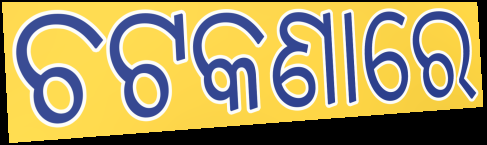
ଚଟକଣାରେ